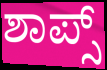
ಶಾಪ್ಸ್